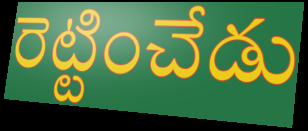
రెట్టించేడు